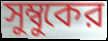
সুম্বুকের